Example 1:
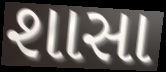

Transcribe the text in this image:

શાસા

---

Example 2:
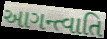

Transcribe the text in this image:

આગન્ત્વાતિ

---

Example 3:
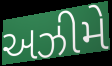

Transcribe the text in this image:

અઝીમે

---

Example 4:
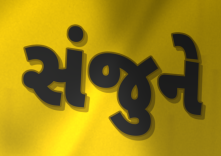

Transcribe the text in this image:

સંજુને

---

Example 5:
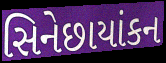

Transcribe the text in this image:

સિનેછાયાંકન